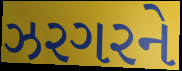
ઝરગરને